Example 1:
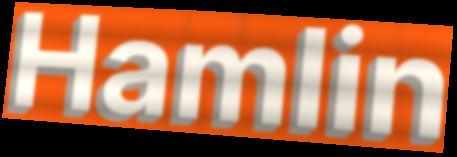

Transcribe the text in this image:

Hamlin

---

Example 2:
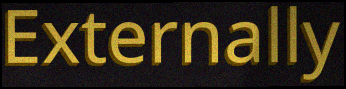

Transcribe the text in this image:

Externally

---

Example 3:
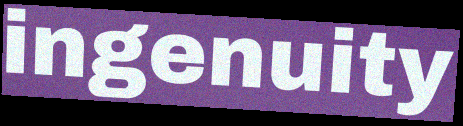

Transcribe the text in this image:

ingenuity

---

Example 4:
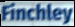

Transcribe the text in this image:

Finchley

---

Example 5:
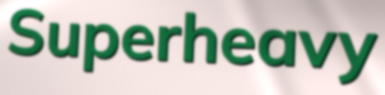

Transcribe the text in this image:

Superheavy